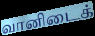
வானிடைக்